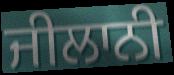
ਜੀਲਾਨੀ